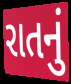
રાતનું